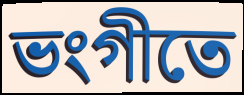
ভংগীতে